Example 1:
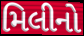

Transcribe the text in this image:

મિલીનો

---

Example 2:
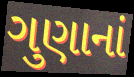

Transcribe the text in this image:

ગુણાનાં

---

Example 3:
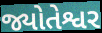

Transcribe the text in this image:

જ્યોતેશ્વર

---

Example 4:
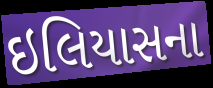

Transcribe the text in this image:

ઇલિયાસના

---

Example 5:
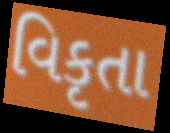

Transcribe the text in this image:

વિકૃતા